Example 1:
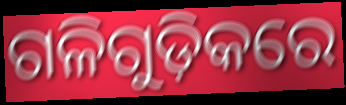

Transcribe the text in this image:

ଗଳିଗୁଡ଼ିକରେ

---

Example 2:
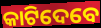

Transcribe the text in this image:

କାଟିଦେବେ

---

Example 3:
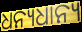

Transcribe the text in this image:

ଧନ୍ୟଧାନ୍ୟ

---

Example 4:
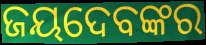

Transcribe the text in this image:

ଜୟଦେବଙ୍କର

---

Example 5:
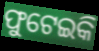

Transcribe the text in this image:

ଫୁଟେଇକି